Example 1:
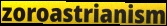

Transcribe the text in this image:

zoroastrianism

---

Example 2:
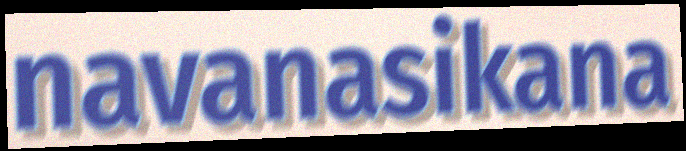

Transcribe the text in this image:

navanasikana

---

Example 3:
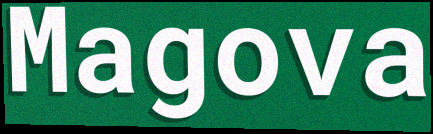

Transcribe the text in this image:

Magova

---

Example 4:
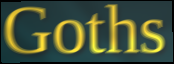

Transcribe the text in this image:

Goths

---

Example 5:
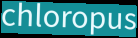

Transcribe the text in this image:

chloropus